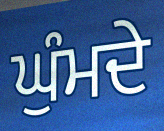
ਘੁੰਮਦੇ